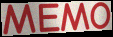
MEMO